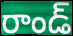
రాండ్